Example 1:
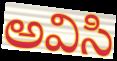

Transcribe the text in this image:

అవిసి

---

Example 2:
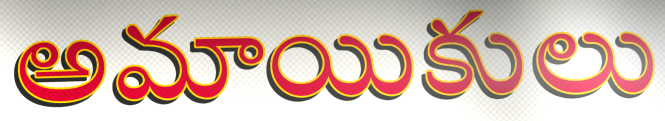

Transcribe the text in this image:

అమాయికులు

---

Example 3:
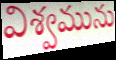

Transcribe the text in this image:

విశ్వమును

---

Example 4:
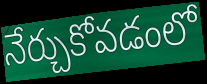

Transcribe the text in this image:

నేర్చుకోవడంలో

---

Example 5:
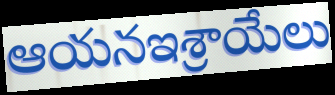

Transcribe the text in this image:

ఆయనఇశ్రాయేలు